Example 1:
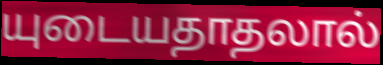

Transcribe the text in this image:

யுடையதாதலால்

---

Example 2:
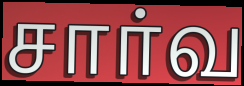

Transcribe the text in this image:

சார்வ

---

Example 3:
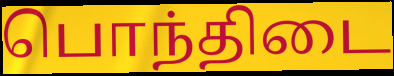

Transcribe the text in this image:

பொந்திடை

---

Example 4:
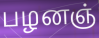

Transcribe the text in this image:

பழனஞ்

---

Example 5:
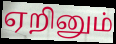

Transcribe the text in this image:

ஏறினும்